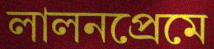
লালনপ্রেমে